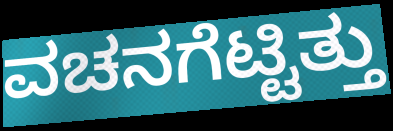
ವಚನಗೆಟ್ಟಿತ್ತು